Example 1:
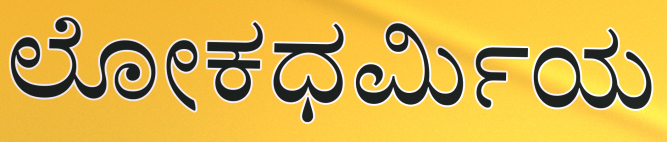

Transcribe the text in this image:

ಲೋಕಧರ್ಮಿಯ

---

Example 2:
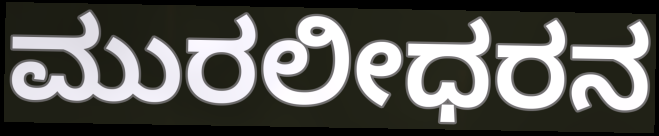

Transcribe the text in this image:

ಮುರಲೀಧರನ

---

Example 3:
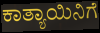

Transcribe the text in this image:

ಕಾತ್ಯಾಯಿನಿಗೆ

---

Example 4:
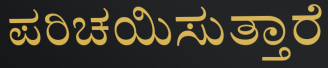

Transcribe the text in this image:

ಪರಿಚಯಿಸುತ್ತಾರೆ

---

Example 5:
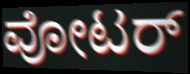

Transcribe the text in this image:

ವೋಟರ್